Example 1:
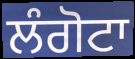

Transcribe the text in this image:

ਲੰਗੋਟਾ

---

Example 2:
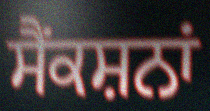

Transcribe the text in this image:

ਸੈਂਕਸ਼ਨਾਂ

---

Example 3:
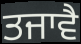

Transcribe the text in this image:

ਤਜਾਵੈ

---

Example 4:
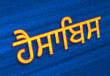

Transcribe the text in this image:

ਹੈਸਾਬਿਸ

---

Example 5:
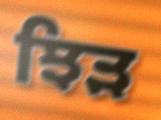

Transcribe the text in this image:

ਝਿੜ